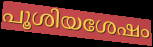
പൂശിയശേഷം